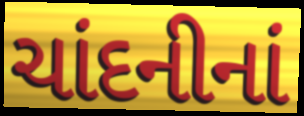
ચાંદનીનાં